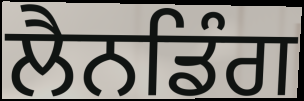
ਲੈਨਡਿੰਗ